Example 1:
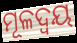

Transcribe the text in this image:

ମୂଳଦ୍ଵୟ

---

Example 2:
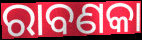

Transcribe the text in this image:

ରାବଣକା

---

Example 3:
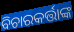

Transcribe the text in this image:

ବିଚାରକର୍ତ୍ତାଙ୍କ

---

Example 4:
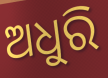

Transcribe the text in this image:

ଅଧୁରି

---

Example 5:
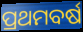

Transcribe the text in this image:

ପ୍ରଥମବର୍ଷ